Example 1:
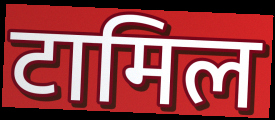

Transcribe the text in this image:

टामिल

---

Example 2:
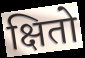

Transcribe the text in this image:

क्षितो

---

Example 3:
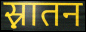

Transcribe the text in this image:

स्नातन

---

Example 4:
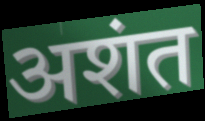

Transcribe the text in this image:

अशंत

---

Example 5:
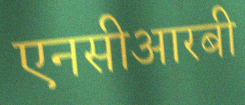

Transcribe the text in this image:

एनसीआरबी